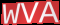
WVA